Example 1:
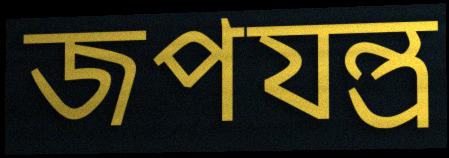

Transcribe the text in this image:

জপযন্ত্র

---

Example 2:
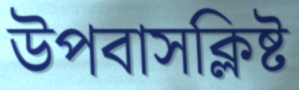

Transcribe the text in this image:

উপবাসক্লিষ্ট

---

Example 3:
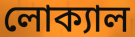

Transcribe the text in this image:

লোক্যাল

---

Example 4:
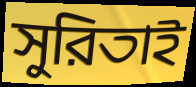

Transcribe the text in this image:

সুরিতাই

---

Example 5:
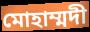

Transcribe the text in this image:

মোহাম্মদী